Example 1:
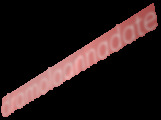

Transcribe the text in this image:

dramolaannadate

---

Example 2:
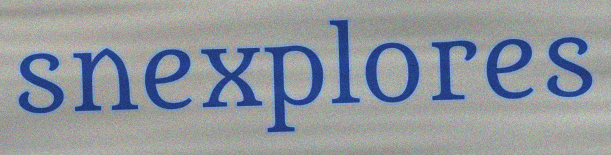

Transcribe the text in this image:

snexplores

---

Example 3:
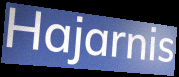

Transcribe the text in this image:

Hajarnis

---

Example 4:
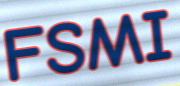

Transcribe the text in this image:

FSMI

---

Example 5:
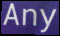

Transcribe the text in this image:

Any